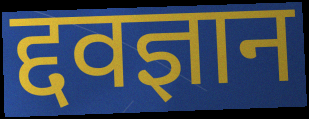
द्दवज्ञान